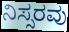
ನಿಸ್ಸರವು